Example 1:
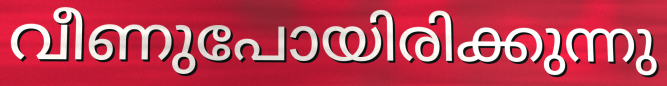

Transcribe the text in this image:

വീണുപോയിരിക്കുന്നു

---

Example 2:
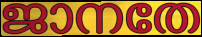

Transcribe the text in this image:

ജാനതേ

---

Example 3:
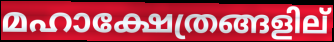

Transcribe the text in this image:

മഹാക്ഷേത്രങ്ങളില്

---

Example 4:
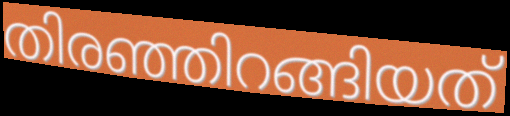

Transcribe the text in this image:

തിരഞ്ഞിറങ്ങിയത്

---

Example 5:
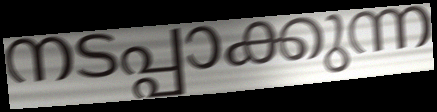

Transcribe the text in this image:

നടപ്പാക്കുന്ന